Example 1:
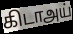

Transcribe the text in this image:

கிடாஅய்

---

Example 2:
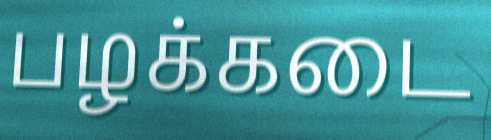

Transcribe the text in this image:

பழக்கடை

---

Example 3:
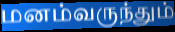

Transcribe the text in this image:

மனம்வருந்தும்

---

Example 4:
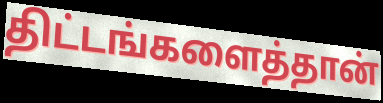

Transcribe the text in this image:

திட்டங்களைத்தான்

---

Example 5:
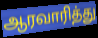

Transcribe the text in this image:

ஆரவாரித்து